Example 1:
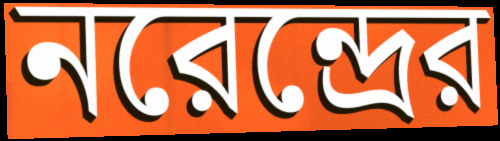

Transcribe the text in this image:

নরেন্দ্রের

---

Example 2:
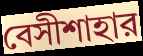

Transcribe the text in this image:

বেসীশাহার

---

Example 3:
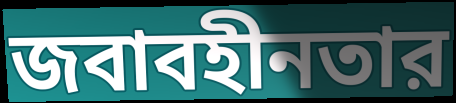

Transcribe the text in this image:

জবাবহীনতার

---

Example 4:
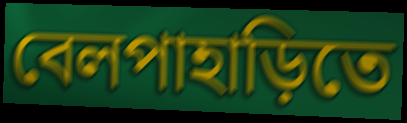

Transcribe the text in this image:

বেলপাহাড়িতে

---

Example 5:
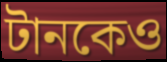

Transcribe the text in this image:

টানকেও